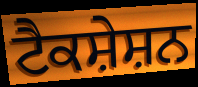
ਟੈਕਸ਼ੇਸ਼ਨ